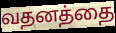
வதனத்தை